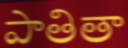
పాతితా